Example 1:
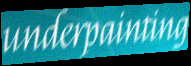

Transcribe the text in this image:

underpainting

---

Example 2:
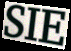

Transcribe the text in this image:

SIE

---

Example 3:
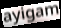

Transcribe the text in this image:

ayigam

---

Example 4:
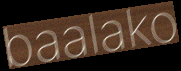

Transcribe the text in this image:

baalako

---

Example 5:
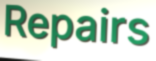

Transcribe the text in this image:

Repairs